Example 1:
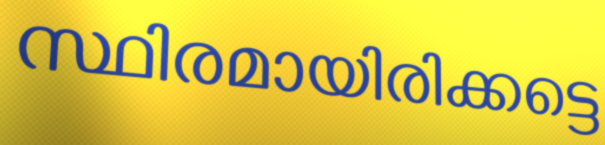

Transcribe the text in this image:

സ്ഥിരമായിരിക്കട്ടെ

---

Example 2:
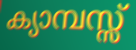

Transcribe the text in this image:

ക്യാമ്പസ്സ്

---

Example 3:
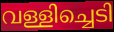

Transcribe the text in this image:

വള്ളിച്ചെടി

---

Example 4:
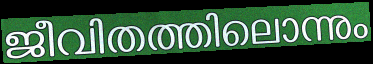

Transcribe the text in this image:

ജീവിതത്തിലൊന്നും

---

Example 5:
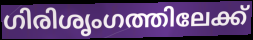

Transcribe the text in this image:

ഗിരിശൃംഗത്തിലേക്ക്